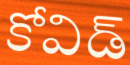
కోవిడ్